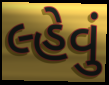
લ્હેવું